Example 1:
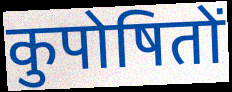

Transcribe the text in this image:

कुपोषितों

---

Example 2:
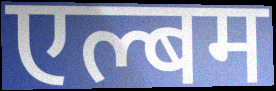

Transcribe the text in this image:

एल्बम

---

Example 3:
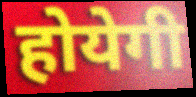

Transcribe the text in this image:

होयेगी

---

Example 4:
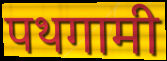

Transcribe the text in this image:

पथगामी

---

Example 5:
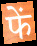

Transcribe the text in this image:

फें